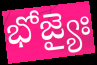
భోజ్యైః